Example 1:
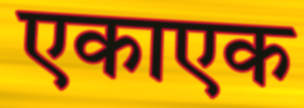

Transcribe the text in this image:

एकाएक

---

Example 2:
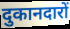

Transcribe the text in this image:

दुकानदारों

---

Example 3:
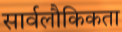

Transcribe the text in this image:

सार्वलौकिकता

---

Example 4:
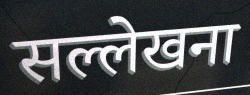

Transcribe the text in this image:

सल्लेखना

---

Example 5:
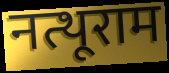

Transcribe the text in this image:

नत्थूराम